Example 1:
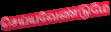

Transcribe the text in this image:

செய்யவேண்டுமே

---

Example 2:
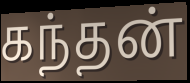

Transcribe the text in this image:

கந்தன்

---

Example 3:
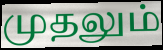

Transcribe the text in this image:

முதலும்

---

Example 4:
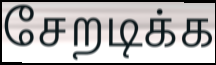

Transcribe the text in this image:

சேறடிக்க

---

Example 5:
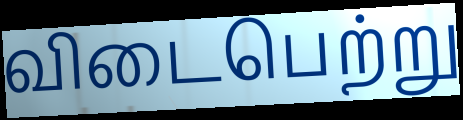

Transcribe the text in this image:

விடைபெற்று